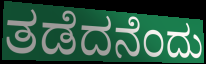
ತಡೆದನೆಂದು